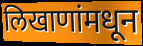
लिखाणांमधून